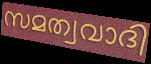
സമത്വവാദി